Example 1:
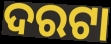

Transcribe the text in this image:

ଦରଟା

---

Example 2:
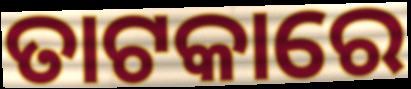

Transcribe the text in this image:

ତାଟକାରେ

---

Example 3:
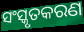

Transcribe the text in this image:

ସଂସ୍କୃତକରଣ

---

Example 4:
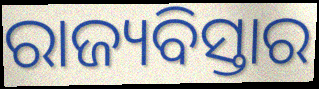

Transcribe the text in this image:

ରାଜ୍ୟବିସ୍ତାର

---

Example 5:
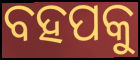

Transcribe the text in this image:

ବହପକୁ